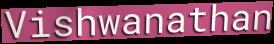
Vishwanathan